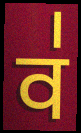
व॑